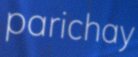
parichay